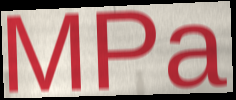
MPa